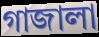
গাজালা